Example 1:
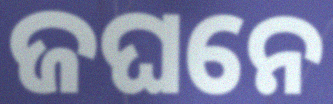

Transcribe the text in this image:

ଜଘନେ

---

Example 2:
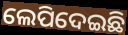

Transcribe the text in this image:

ଲେପିଦେଇଛି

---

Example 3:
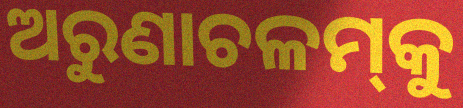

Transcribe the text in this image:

ଅରୁଣାଚଳମ୍‌କୁ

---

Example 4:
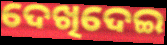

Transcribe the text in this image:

ଦେଖିଦେଇ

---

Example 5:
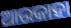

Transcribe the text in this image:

ଆଉକାହା